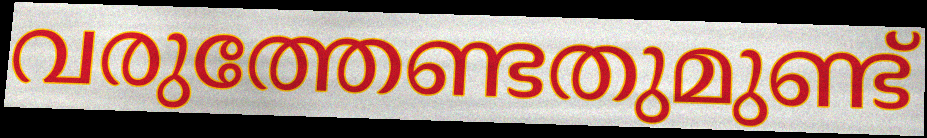
വരുത്തേണ്ടതുമുണ്ട്